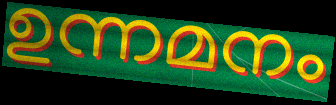
ഉന്നമനം